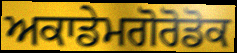
ਅਕਾਡੇਮਗੋਰੋਡੋਕ